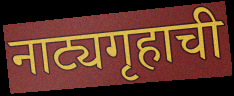
नाट्यगृहाची